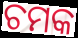
ଚମକ